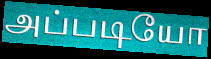
அப்படியோ